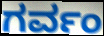
ಗರ್ವಂ